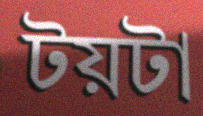
টয়টা